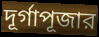
দূর্গাপূজার